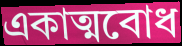
একাত্মবোধ